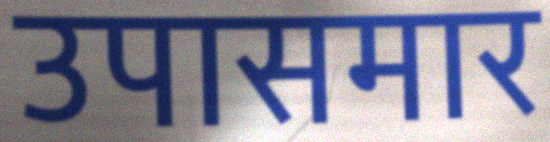
उपासमार